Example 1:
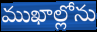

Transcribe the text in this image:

ముఖాల్లోను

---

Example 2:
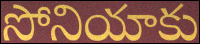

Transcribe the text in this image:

సోనియాకు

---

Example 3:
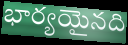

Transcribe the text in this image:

భార్యయైనది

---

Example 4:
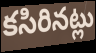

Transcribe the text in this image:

కసిరినట్లు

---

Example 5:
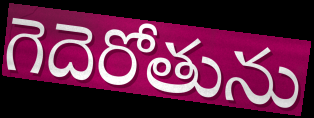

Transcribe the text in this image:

గెదెరోతును